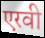
एरवी